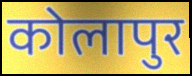
कोलापुर